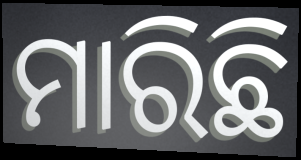
ମାରିଛି